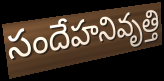
సందేహనివృత్తి